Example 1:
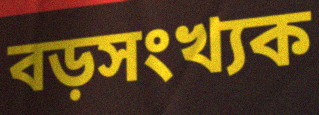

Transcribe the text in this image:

বড়সংখ্যক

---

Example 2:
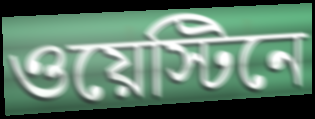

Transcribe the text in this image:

ওয়েস্টিনে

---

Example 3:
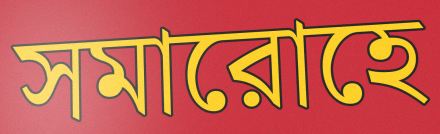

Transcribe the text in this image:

সমারোহে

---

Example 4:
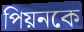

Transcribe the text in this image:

পিয়নকে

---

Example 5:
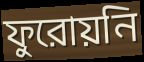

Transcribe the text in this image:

ফুরোয়নি